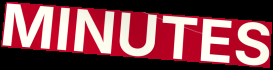
MINUTES